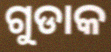
ଗୁଡାକ